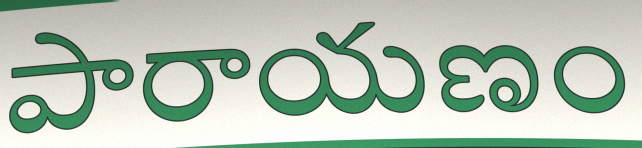
పారాయణం